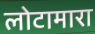
लोटामारा